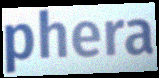
phera